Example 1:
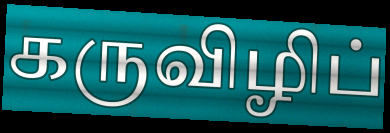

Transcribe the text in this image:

கருவிழிப்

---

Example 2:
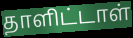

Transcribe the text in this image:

தாளிட்டாள்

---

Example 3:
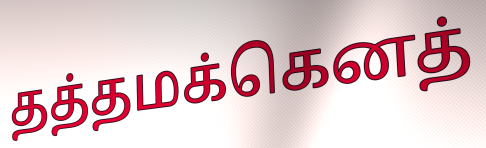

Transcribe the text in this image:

தத்தமக்கெனத்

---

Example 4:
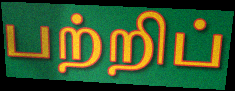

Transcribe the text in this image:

பற்றிப்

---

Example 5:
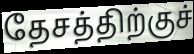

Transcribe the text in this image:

தேசத்திற்குச்